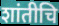
शांतीचि